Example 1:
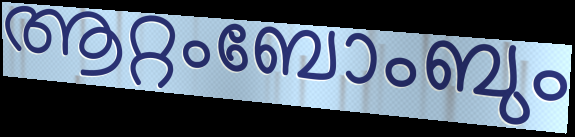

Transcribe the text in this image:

ആറ്റംബോംബും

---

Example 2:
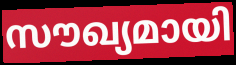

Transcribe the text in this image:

സൗഖ്യമായി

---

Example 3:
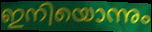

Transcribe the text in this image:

ഇനിയൊന്നും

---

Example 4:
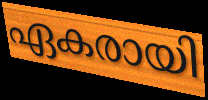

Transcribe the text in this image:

ഏകരായി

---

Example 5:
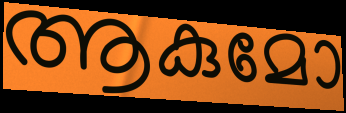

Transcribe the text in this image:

ആകുമോ